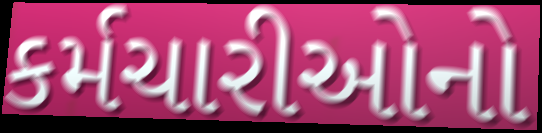
કર્મચારીઓનો